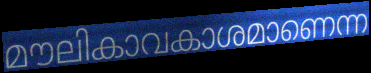
മൗലികാവകാശമാണെന്ന